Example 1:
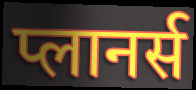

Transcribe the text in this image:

प्लानर्स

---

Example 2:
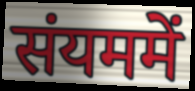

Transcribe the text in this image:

संयममें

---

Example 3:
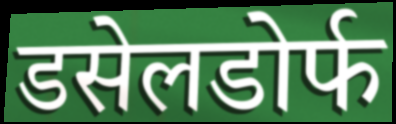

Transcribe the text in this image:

डसेलडोर्फ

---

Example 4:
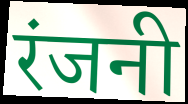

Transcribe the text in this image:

रंजनी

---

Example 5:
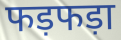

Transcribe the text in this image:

फड़फड़ा